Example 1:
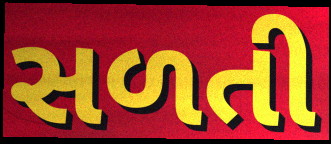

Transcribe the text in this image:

સળતી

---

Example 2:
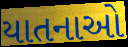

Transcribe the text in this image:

યાતનાઓ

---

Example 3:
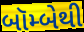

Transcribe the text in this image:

બૉમ્બેથી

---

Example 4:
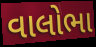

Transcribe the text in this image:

વાલોભા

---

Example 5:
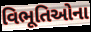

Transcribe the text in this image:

વિભૂતિઓના